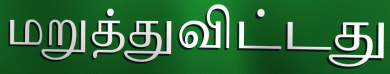
மறுத்துவிட்டது